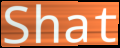
Shat